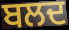
ਬਲਦ